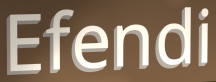
Efendi